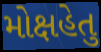
મોક્ષહેતુ